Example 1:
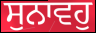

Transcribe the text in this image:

ਸੁਨਾਵਹੁ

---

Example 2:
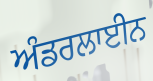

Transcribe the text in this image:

ਅੰਡਰਲਾਈਨ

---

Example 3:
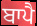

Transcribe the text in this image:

ਬਾਪੈ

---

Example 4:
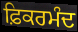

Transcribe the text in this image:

ਫ਼ਿਕਰਮੰਦ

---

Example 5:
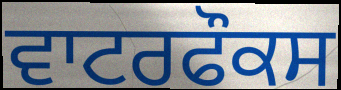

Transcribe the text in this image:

ਵਾਟਰਫੌਕਸ